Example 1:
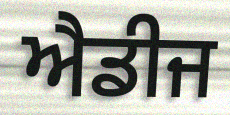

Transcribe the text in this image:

ਐਡੀਜ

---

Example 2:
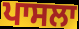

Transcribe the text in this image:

ਪਾਸਲਾ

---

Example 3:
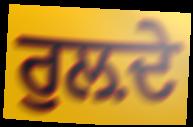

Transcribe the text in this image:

ਰੁਲ਼ਦੇ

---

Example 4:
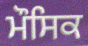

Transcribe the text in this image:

ਮੌਸਿਕ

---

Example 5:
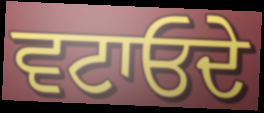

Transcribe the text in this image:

ਵਟਾਓਦੇ